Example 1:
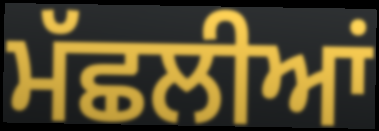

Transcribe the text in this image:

ਮੱਛਲੀਆਂ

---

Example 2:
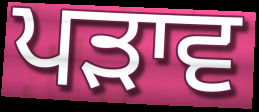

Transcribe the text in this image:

ਪੜਾਵ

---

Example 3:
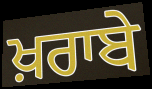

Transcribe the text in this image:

ਖ਼ਰਾਬੇ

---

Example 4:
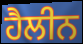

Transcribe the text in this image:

ਹੈਲੀਨ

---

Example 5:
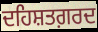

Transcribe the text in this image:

ਦਹਿਸ਼ਤਗ਼ਰਦ